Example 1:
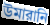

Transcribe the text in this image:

উমারানি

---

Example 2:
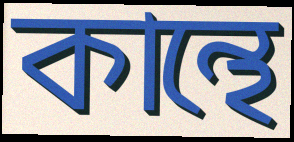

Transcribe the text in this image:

কান্থে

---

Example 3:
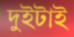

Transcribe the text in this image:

দুইটাই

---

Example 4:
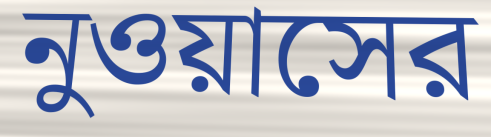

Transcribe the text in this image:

নুওয়াসের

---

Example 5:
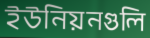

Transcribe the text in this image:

ইউনিয়নগুলি